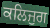
ਕਲਿਜੁਗ